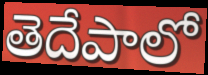
తెదేపాలో